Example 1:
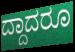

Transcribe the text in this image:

ದ್ದಾದರೂ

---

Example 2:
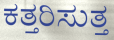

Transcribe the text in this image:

ಕತ್ತರಿಸುತ್ತ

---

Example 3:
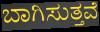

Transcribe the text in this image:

ಬಾಗಿಸುತ್ತವೆ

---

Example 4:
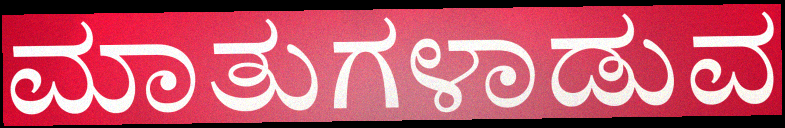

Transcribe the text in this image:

ಮಾತುಗಳಾಡುವ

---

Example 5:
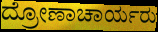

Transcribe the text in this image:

ದ್ರೋಣಾಚಾರ್ಯರು